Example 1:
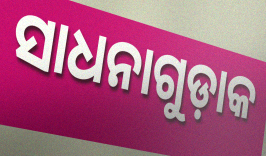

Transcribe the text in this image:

ସାଧନାଗୁଡ଼ାକ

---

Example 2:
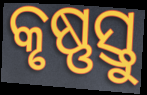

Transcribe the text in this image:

କୃଷ୍ଣସ୍ତୁ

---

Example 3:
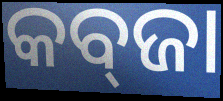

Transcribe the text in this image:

କବ୍‍ଜା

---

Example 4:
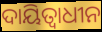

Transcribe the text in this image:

ଦାୟିତ୍ଵାଧୀନ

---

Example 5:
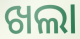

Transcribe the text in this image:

ଖଲା